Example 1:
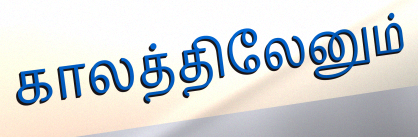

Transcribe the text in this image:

காலத்திலேனும்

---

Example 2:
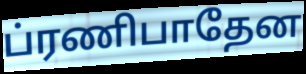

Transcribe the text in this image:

ப்ரணிபாதேன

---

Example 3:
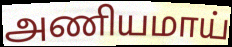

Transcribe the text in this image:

அணியமாய்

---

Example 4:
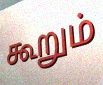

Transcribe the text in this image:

கூறும்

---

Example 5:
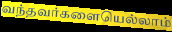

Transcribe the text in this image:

வந்தவர்களையெல்லாம்